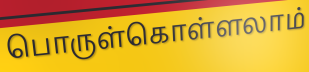
பொருள்கொள்ளலாம்